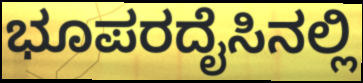
ಭೂಪರದೈಸಿನಲ್ಲಿ